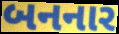
બનનાર